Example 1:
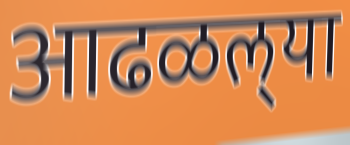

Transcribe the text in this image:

आढळल्या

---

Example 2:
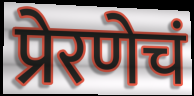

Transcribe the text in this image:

प्रेरणेचं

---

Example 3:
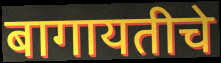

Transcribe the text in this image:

बागायतीचे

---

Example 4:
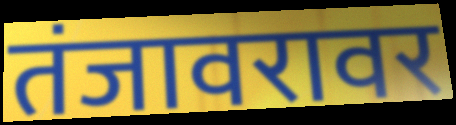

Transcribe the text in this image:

तंजावरावर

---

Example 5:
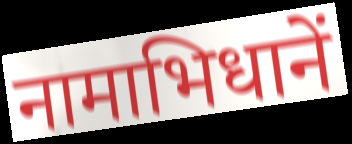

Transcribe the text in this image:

नामाभिधानें